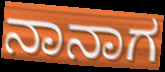
ನಾನಾಗ